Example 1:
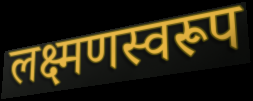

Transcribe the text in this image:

लक्ष्मणस्वरूप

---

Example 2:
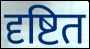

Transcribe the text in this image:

दृष्टित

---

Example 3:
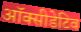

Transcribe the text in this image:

ऑक्सीडेटिव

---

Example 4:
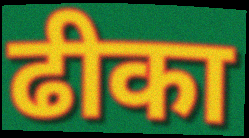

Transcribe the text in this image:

ढीका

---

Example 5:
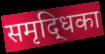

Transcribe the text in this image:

समृद्धिका